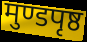
मुण्डपृष्ठ